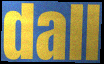
dall